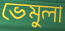
ভেমুলা